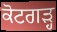
ਕੋਟਗੜ੍ਹ